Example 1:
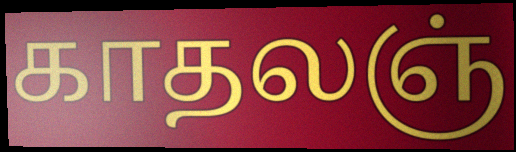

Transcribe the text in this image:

காதலஞ்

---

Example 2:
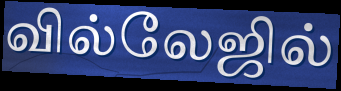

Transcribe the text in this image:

வில்லேஜில்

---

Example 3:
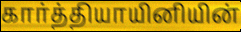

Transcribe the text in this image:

கார்த்தியாயினியின்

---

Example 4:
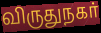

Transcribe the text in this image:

விருதுநகர்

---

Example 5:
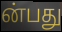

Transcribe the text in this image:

ன்பது